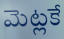
మెట్లకే